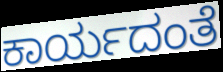
ಕಾರ್ಯದಂತೆ